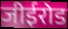
जीईरोड